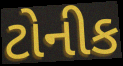
ટોનીક